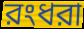
রংধরা